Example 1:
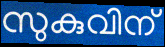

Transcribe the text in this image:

സുകുവിന്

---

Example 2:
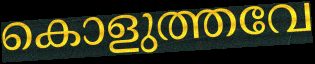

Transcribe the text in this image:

കൊളുത്തവേ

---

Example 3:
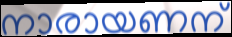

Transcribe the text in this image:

നാരായണന്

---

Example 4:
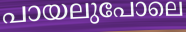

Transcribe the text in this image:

പായലുപോലെ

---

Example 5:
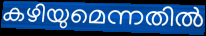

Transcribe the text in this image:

കഴിയുമെന്നതിൽ